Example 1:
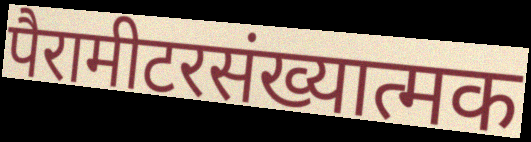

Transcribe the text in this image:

पैरामीटरसंख्यात्मक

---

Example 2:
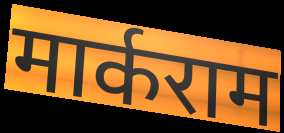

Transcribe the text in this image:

मार्कराम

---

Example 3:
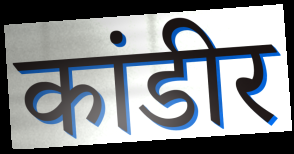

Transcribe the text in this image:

कांडीर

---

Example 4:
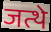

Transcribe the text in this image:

जत्थे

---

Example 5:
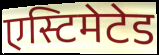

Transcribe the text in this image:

एस्टिमेटेड